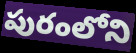
పురంలోని